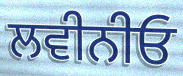
ਲਵੀਨੀਓ